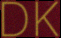
DK